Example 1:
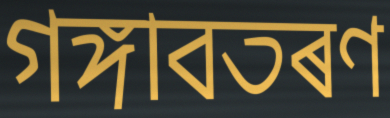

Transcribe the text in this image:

গঙ্গাবতৰণ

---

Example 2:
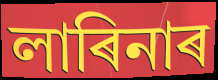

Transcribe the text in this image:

লাৰিনাৰ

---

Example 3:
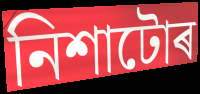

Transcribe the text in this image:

নিশাটোৰ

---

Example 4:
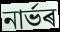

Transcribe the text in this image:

নাৰ্ভৰ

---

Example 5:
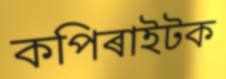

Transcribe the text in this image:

কপিৰাইটক